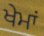
ਖੇਮਾਂ